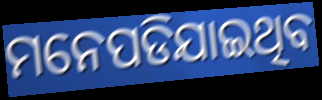
ମନେପଡିଯାଇଥିବ